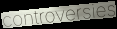
controversies